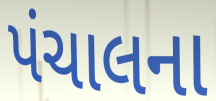
પંચાલના